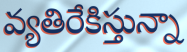
వ్యతిరేకిస్తున్నా